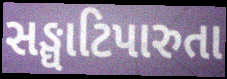
સઙ્ઘાટિપારુતા